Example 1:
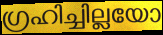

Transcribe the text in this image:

ഗ്രഹിച്ചില്ലയോ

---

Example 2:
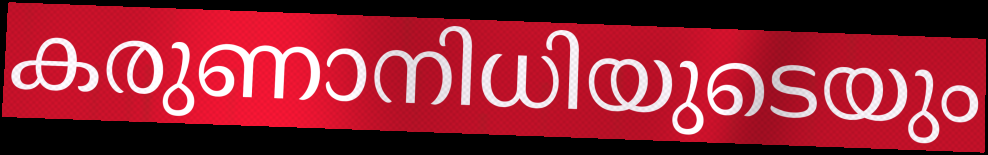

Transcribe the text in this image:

കരുണാനിധിയുടെയും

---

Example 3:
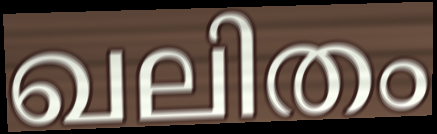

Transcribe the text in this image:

ഖലിതം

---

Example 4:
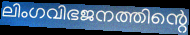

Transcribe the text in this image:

ലിംഗവിഭജനത്തിന്റെ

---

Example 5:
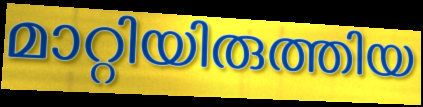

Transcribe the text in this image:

മാറ്റിയിരുത്തിയ